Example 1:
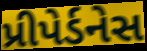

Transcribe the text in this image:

પ્રીપેર્ડનેસ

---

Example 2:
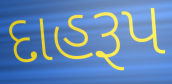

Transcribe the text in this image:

દાહરૂપ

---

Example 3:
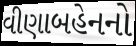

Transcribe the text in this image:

વીણાબહેનનો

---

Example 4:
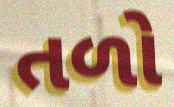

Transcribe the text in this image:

તળો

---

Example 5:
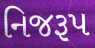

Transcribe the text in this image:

નિજરૂપ